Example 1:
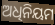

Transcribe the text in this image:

ଅଧିନିୟମ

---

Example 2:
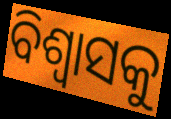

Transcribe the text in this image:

ବିଶ୍ୱାସକୁ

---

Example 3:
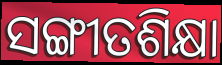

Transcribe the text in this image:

ସଙ୍ଗୀତଶିକ୍ଷା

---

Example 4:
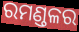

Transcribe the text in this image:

ରମଣ୍ଡଳର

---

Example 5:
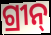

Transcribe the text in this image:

ଗ୍ରୀନ୍